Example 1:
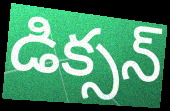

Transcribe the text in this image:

డిక్సన్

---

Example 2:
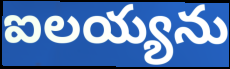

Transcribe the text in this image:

ఐలయ్యను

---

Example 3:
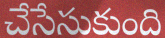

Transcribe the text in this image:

చేసేసుకుంది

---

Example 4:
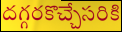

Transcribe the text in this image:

దగ్గరకొచ్చేసరికి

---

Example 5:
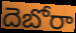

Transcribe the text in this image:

దెబోరా